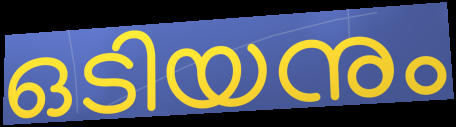
ഒടിയനും